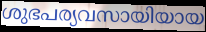
ശുഭപര്യവസായിയായ